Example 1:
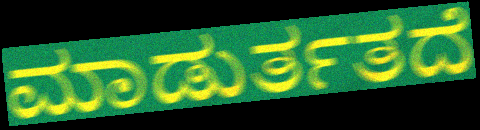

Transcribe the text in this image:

ಮಾಡುರ್ತತದೆ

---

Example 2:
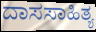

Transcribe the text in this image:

ದಾಸಸಾಹಿತ್ಯ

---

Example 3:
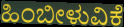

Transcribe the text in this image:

ಹಿಂಬೀಳುವಿಕೆ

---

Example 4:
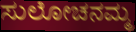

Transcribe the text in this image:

ಸುಲೋಚನಮ್ಮ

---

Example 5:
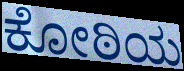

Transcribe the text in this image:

ಕೋಠಿಯ